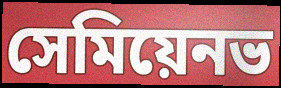
সেমিয়েনভ